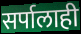
सर्पालाही